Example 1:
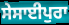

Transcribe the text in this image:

ਸੇਸਾਈਪੁਰਾ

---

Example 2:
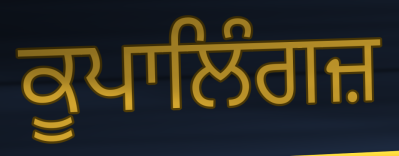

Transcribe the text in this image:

ਕੂਪਾਲਿੰਗਜ਼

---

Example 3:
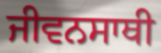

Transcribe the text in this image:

ਜੀਵਨਸਾਥੀ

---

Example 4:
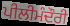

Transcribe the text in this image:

ਪੀਲੀਮੰਦੌਰੀ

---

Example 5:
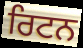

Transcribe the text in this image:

ਰਿਟਨ